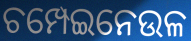
ଚମ୍ପେଇନେଉଳ